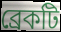
ব্রেকটি